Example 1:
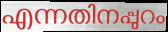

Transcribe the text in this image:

എന്നതിനപ്പുറം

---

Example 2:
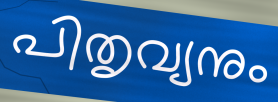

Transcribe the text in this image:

പിതൃവ്യനും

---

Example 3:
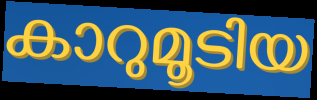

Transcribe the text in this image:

കാറുമൂടിയ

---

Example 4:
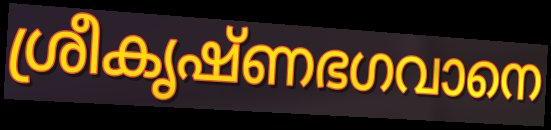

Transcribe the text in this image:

ശ്രീകൃഷ്ണഭഗവാനെ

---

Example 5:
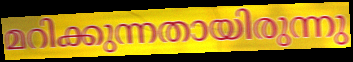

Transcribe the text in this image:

മറിക്കുന്നതായിരുന്നു